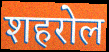
शहरोल